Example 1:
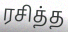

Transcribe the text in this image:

ரசித்த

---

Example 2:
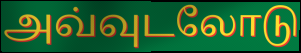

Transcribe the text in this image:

அவ்வுடலோடு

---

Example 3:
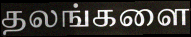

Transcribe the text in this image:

தலங்களை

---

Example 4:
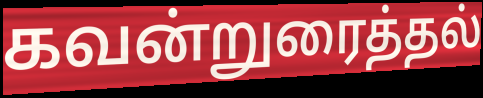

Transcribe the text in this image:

கவன்றுரைத்தல்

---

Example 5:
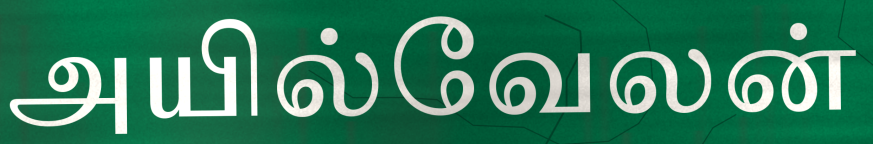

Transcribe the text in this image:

அயில்வேலன்